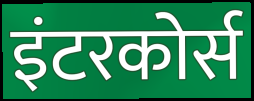
इंटरकोर्स